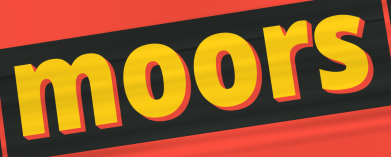
moors